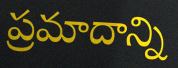
ప్రమాదాన్ని